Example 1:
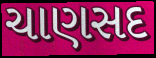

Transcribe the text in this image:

ચાણસદ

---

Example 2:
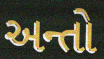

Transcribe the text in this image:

અન્તો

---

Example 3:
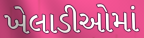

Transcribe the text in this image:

ખેલાડીઓમાં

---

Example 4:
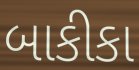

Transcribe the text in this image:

બાકીકા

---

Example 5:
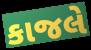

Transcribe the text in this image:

કાજલે